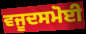
ਵਜੂਦਸਮੋਈ